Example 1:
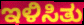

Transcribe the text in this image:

ಇಳಿಸಿತು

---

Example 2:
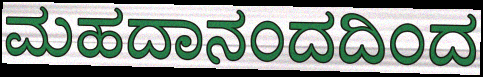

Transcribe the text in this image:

ಮಹದಾನಂದದಿಂದ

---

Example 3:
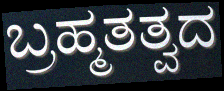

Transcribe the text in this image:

ಬ್ರಹ್ಮತತ್ವದ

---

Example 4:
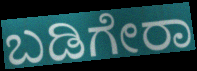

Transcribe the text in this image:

ಬಡಿಗೇರಾ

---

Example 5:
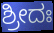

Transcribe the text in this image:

ಶ್ರೀದಃ